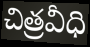
చిత్రవీధి